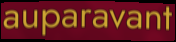
auparavant